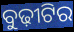
ବୁଢ଼ୀଟିର